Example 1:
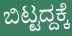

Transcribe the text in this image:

ಬಿಟ್ಟದ್ದಕ್ಕೆ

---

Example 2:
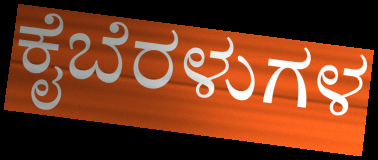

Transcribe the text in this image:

ಕೈಬೆರಳುಗಳ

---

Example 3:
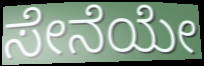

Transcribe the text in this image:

ಸೇನೆಯೇ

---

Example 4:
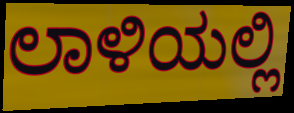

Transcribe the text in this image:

ಲಾಳಿಯಲ್ಲಿ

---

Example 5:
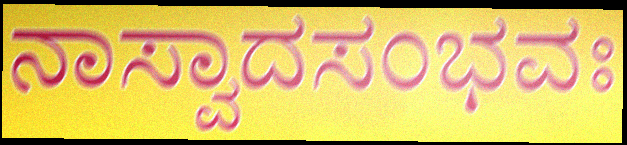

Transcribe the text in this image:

ನಾಸ್ವಾದಸಂಭವಃ